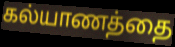
கல்யாணத்தை